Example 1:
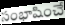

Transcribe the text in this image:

సంభాషించే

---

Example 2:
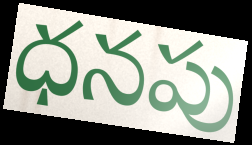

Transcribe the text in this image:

ధనపు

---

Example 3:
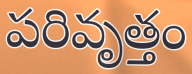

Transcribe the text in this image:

పరివృత్తం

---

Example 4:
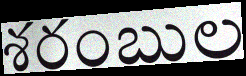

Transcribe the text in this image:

శరంబుల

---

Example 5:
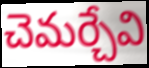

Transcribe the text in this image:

చెమర్చేవి